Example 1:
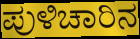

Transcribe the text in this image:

ಪುಳಿಚಾರಿನ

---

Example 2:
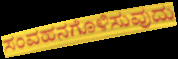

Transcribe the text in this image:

ಸಂವಹನಗೊಳಿಸುವುದು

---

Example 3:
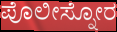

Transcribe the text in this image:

ಪೊಲೀಸ್ನೋರ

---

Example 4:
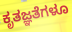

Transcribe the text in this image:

ಕೃತಜ್ಞತೆಗಳೂ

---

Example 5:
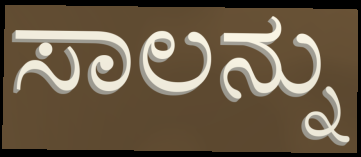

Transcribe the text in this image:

ಸಾಲನ್ನು